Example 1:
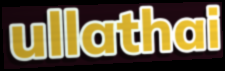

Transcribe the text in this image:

ullathai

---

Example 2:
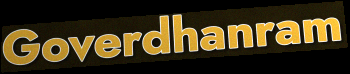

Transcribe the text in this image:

Goverdhanram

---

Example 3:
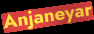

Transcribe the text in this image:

Anjaneyar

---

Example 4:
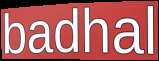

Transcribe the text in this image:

badhal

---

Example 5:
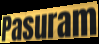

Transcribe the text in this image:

Pasuram